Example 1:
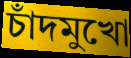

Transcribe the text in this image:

চাঁদমুখো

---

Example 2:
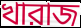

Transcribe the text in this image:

খারাজ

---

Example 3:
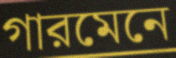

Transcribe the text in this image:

গারমেনে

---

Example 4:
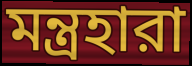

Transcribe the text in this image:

মন্ত্রহারা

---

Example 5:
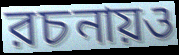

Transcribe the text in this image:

রচনায়ও